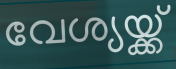
വേശ്യയ്ക്ക്